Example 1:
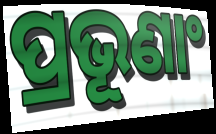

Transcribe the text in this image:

ପ୍ରଭୂଣାଂ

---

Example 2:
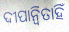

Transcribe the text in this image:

ଦୀପାନ୍ୱିତାହିଁ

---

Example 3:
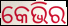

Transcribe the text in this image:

କେଭିର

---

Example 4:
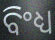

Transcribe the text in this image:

ବିଂଧ୍ୟ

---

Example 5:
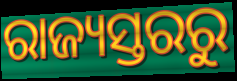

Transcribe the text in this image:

ରାଜ୍ୟସ୍ତରରୁ